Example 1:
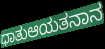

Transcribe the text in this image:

ಧಾತುಆಯತನಾನ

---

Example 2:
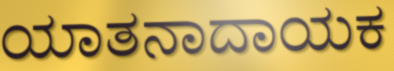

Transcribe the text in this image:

ಯಾತನಾದಾಯಕ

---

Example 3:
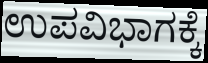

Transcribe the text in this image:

ಉಪವಿಭಾಗಕ್ಕೆ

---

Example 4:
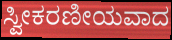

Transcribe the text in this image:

ಸ್ವೀಕರಣೀಯವಾದ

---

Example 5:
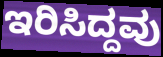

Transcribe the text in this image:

ಇರಿಸಿದ್ದವು